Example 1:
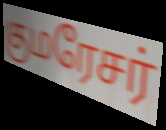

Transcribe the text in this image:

குமரேசர்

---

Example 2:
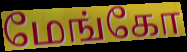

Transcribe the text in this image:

மேங்கோ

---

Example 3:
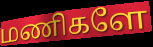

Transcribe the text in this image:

மணிகளே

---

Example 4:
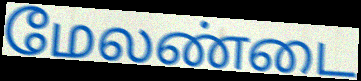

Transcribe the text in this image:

மேலண்டை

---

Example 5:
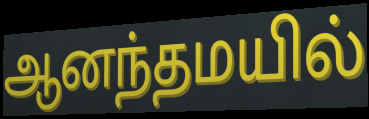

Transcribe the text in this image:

ஆனந்தமயில்